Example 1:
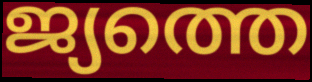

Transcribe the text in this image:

ജ്യത്തെ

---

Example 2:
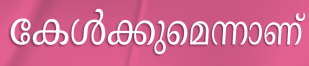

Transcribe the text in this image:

കേൾക്കുമെന്നാണ്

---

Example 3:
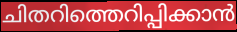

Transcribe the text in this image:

ചിതറിത്തെറിപ്പിക്കാൻ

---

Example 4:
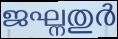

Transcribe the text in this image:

ജഘ്നതുർ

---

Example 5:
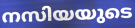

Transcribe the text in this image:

നസിയയുടെ